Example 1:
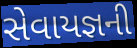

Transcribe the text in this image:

સેવાયજ્ઞની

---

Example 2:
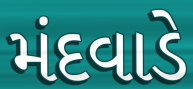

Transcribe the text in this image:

મંદવાડે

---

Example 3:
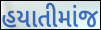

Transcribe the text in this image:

હયાતીમાંજ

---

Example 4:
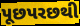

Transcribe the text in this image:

પૂછપરછથી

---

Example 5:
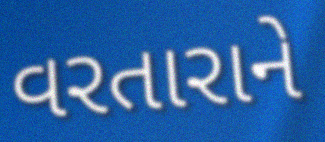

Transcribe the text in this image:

વરતારાને